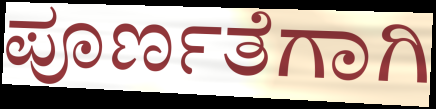
ಪೂರ್ಣತೆಗಾಗಿ